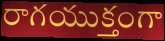
రాగయుక్తంగా